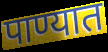
पाण्यात